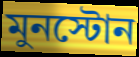
মুনস্টোন